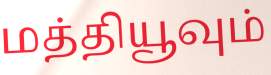
மத்தியூவும்